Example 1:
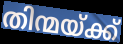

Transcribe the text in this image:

തിന്മയ്ക്ക്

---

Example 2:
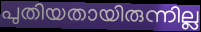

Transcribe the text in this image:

പുതിയതായിരുന്നില്ല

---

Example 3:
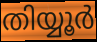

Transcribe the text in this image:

തിയ്യൂർ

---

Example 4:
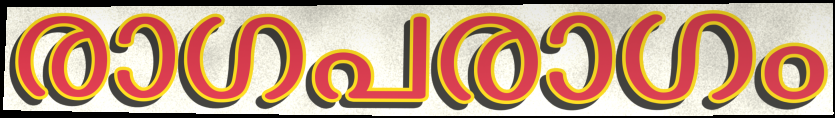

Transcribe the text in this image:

രാഗപരാഗം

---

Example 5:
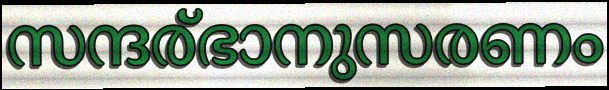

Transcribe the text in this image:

സന്ദര്ഭാനുസരണം